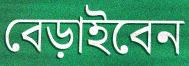
বেড়াইবেন